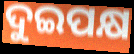
ଦୁଇପକ୍ଷ